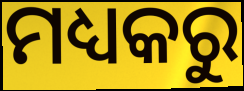
ମଧ୍ୟକରୁ